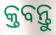
କ୍ତବନ୍ତୁ